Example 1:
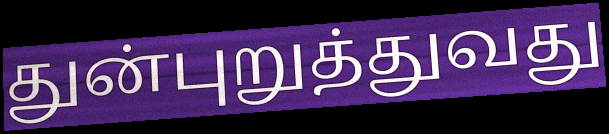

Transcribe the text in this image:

துன்புறுத்துவது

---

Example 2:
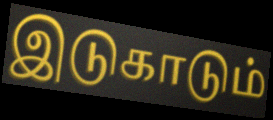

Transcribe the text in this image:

இடுகாடும்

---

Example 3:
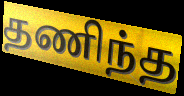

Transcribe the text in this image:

தணிந்த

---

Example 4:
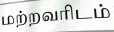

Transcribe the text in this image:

மற்றவரிடம்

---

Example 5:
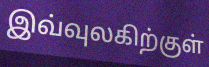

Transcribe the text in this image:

இவ்வுலகிற்குள்